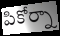
పికోర్నా